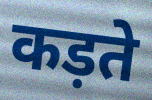
कड़ते